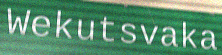
Wekutsvaka